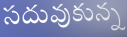
సదువుకున్న